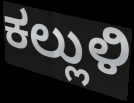
ಕಲ್ಲುಳಿ